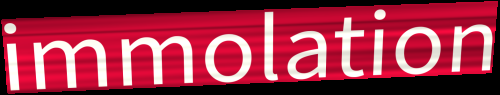
immolation